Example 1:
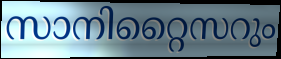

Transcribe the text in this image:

സാനിറ്റൈസറും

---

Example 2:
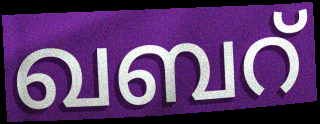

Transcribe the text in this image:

ഖബറ്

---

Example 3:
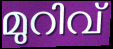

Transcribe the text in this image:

മുറിവ്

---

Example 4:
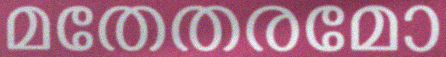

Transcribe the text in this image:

മതേതരമോ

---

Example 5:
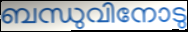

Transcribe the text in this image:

ബന്ധുവിനോടു